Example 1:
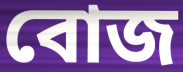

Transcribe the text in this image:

বোজ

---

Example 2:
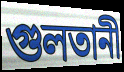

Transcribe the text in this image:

গুলতানী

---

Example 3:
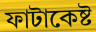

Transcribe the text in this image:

ফাটাকেষ্ট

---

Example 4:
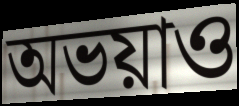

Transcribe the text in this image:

অভয়াও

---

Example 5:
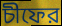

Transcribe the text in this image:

চীফের